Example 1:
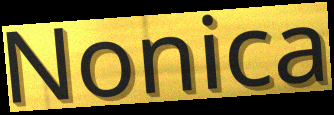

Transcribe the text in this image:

Nonica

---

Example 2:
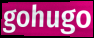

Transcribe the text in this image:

gohugo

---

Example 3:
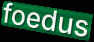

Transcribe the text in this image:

foedus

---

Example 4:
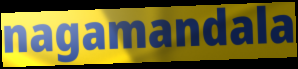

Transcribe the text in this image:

nagamandala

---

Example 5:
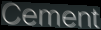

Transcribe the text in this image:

Cement